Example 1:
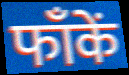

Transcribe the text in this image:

फाँकें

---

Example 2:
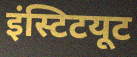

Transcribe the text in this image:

इंस्टिटयूट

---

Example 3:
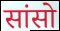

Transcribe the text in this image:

सांसो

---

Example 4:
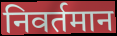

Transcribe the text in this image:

निवर्तमान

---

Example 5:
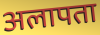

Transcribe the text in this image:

अलापता